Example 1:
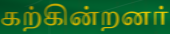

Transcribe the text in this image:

கற்கின்றனர்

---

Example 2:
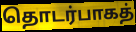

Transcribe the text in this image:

தொடர்பாகத்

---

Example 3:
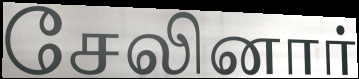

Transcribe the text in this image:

சேலினார்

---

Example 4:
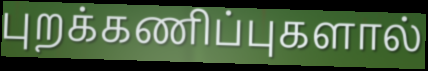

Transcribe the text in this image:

புறக்கணிப்புகளால்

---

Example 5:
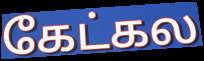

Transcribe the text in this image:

கேட்கல